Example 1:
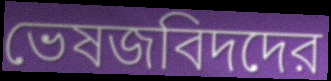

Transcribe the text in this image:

ভেষজবিদদের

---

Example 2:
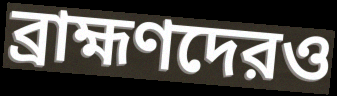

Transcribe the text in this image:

ব্রাহ্মণদেরও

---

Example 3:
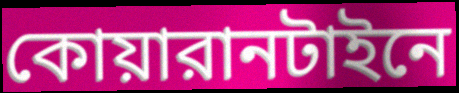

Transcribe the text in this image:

কোয়ারানটাইনে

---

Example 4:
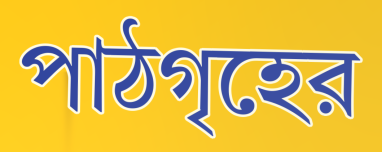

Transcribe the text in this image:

পাঠগৃহের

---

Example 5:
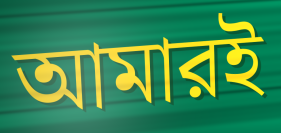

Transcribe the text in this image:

আমারই